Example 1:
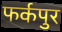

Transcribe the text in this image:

फर्कपुर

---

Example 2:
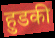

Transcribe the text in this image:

हुडकी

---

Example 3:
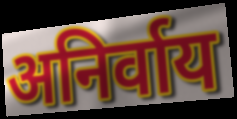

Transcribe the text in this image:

अनिर्वाय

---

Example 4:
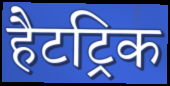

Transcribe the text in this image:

हैटट्रिक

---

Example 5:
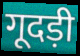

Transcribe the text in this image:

गूदड़ी